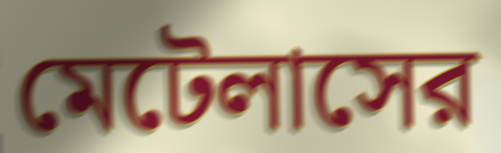
মেটেলাসের